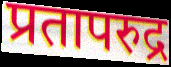
प्रतापरुद्र